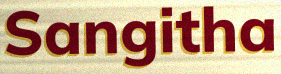
Sangitha